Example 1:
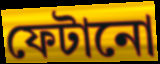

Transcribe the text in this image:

ফেটানো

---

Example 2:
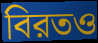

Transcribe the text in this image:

বিরতও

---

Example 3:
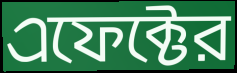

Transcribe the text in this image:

এফেক্টের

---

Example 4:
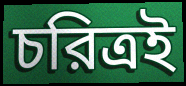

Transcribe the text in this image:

চরিত্রই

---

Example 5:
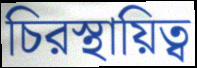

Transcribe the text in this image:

চিরস্থায়িত্ব